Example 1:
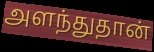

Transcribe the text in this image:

அளந்துதான்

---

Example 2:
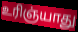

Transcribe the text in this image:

உரிஞ்யாது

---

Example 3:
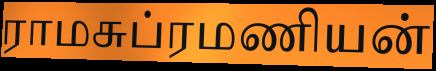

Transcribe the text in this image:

ராமசுப்ரமணியன்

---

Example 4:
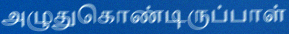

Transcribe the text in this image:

அழுதுகொண்டிருப்பாள்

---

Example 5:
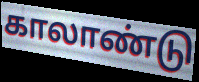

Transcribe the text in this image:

காலாண்டு